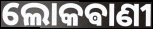
ଲୋକଵାଣୀ